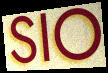
SIO